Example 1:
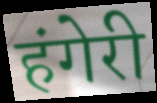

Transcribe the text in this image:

हंगेरी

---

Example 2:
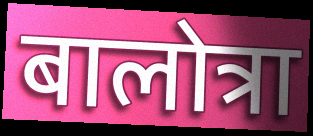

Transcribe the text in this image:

बालोत्रा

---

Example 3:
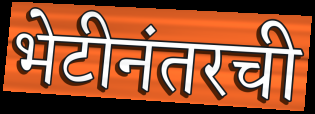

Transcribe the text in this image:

भेटीनंतरची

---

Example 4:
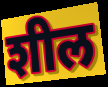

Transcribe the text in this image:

शील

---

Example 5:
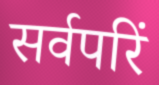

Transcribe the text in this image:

सर्वपरिं